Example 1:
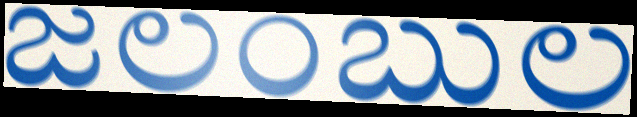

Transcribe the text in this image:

జలంబుల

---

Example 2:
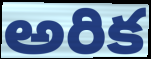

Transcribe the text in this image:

అరిక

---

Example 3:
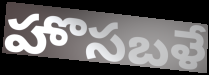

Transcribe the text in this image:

హొసబళే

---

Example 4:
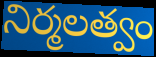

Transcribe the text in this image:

నిర్మలత్వం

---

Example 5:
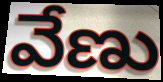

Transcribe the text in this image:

వేణు